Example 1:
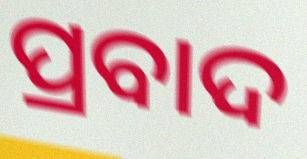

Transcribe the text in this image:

ପ୍ରବାଦ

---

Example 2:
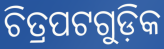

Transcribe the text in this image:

ଚିତ୍ରପଟଗୁଡ଼ିକ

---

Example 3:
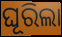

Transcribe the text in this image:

ଘୂରିଲା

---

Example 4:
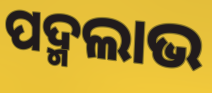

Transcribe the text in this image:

ପଦ୍ମଲାଭ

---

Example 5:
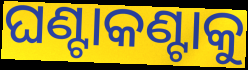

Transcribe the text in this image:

ଘଣ୍ଟାକଣ୍ଟାକୁ